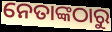
ନେତାଙ୍କଠାରୁ